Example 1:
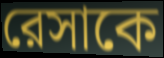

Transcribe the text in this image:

রেসাকে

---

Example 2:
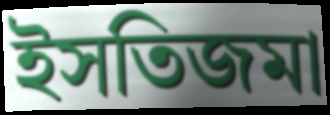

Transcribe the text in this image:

ইসতিজমা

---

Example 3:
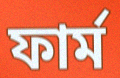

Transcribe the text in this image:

ফার্ম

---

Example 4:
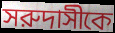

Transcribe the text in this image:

সরুদাসীকে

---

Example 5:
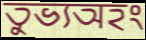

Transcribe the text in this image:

তুভ্যঅহং